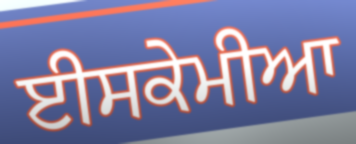
ਈਸਕੇਮੀਆ